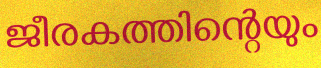
ജീരകത്തിന്റെയും